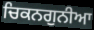
ਚਿਕਨਗੁਨੀਆ